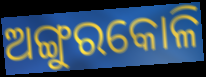
ଅଙ୍ଗୁରକୋଳି